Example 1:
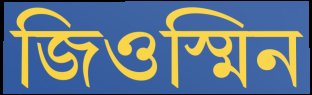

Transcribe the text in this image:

জিওস্মিন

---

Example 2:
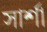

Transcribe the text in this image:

সার্শা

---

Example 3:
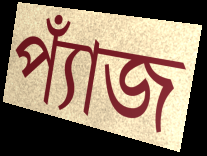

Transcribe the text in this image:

প্যাঁজ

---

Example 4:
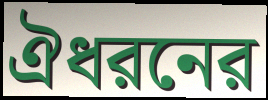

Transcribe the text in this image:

ঐধরনের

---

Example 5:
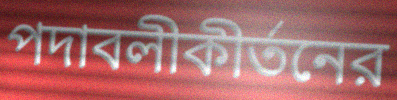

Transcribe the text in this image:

পদাবলীকীর্তনের